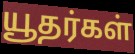
யூதர்கள்